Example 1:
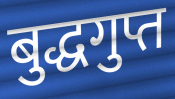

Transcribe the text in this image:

बुद्धगुप्त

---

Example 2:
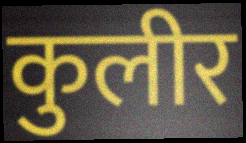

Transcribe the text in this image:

कुलीर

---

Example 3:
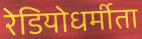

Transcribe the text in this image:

रेडियोधर्मीता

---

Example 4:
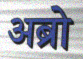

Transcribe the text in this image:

अब्रो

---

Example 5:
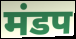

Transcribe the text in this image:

मंडप